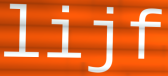
lijf